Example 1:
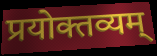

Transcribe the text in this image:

प्रयोक्तव्यम्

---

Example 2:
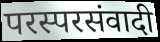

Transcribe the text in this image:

परस्परसंवादी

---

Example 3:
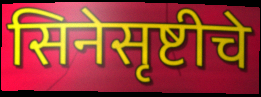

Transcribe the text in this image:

सिनेसृष्टीचे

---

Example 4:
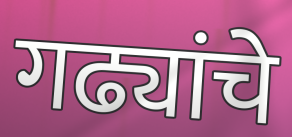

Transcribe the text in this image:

गढ्यांचे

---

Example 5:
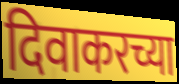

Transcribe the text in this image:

दिवाकरच्या